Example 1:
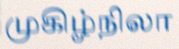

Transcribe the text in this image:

முகிழ்நிலா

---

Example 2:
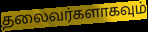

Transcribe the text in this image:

தலைவர்களாகவும்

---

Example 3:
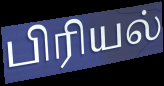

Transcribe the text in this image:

பிரியல்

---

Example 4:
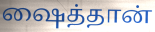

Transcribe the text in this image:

ஷைத்தான்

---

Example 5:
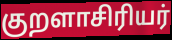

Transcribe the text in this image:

குறளாசிரியர்